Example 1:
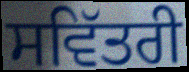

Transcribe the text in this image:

ਸਵਿੱਤਰੀ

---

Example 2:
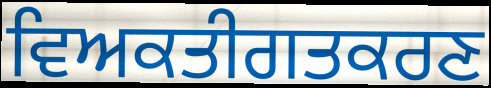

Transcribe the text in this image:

ਵਿਅਕਤੀਗਤਕਰਣ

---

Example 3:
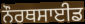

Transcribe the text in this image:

ਨੌਰਥਸਾਈਡ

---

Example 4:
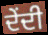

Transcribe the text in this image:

ਦੇਂਦੀ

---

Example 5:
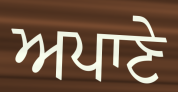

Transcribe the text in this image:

ਅਪਾਣੇ